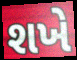
શખે